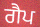
ਗੈਪ